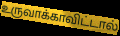
உருவாக்காவிட்டால்